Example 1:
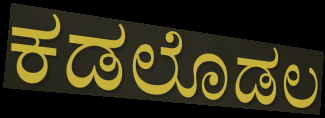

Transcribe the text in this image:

ಕಡಲೊಡಲ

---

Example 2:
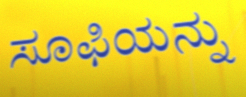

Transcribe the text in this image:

ಸೂಫಿಯನ್ನು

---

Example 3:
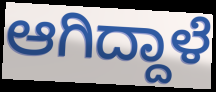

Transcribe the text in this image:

ಆಗಿದ್ದಾಳೆ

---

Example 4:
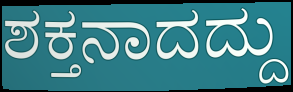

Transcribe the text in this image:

ಶಕ್ತನಾದದ್ದು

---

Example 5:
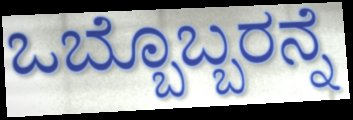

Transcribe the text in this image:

ಒಬ್ಬೊಬ್ಬರನ್ನೆ